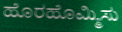
ಹೊರಹೊಮ್ಮಿಸು